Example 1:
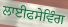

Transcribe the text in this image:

ਲਾਈਫਸੇਵਿੰਗ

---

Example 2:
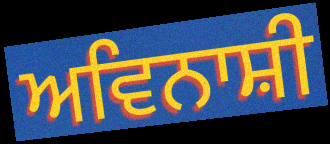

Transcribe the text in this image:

ਅਵਿਨਾਸ਼ੀ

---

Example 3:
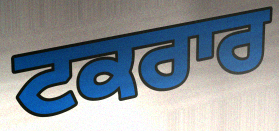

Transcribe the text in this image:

ਟਕਰਾਰ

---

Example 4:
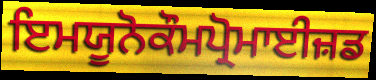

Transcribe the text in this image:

ਇਮਯੂਨੋਕੌਮਪ੍ਰੋਮਾਈਜ਼ਡ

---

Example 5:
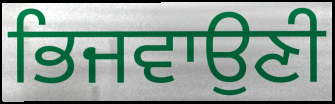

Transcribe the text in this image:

ਭਿਜਵਾਉਣੀ